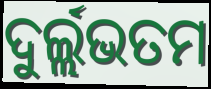
ଦୁର୍ଲ୍ଲଭତମ